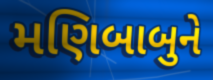
મણિબાબુને